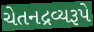
ચેતનદ્રવ્યરૂપે